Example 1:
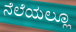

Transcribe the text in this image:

ನೆಲೆಯಲ್ಲೂ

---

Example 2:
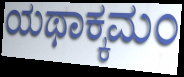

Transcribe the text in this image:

ಯಥಾಕ್ಕಮಂ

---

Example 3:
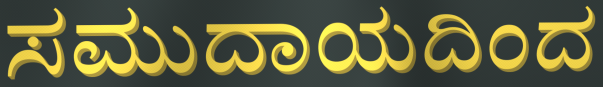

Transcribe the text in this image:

ಸಮುದಾಯದಿಂದ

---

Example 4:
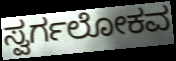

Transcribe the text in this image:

ಸ್ವರ್ಗಲೋಕವ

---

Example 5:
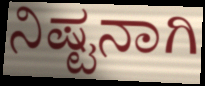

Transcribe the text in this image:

ನಿಷ್ಟನಾಗಿ